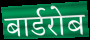
बार्डरोब